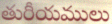
తురీయములు